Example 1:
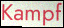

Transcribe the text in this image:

Kampf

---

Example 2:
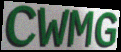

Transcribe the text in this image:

CWMG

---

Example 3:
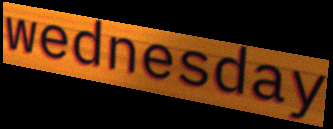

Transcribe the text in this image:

wednesday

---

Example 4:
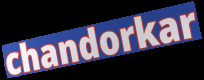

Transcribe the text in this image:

chandorkar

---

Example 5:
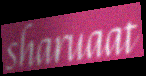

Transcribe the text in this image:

sharuaat